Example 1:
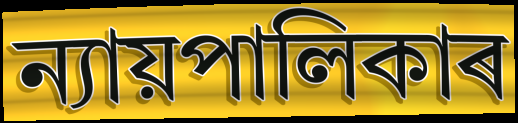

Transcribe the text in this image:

ন্যায়পালিকাৰ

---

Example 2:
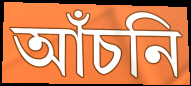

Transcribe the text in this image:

আঁচনি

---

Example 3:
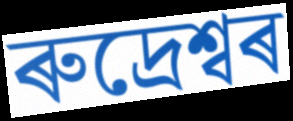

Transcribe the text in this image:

ৰুদ্ৰেশ্বৰ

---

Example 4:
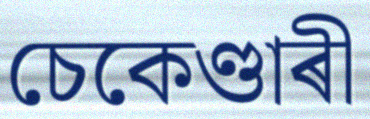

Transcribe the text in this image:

চেকেণ্ডাৰী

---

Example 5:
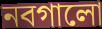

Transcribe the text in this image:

নবগালো